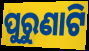
ପୁରୁଣାଟି